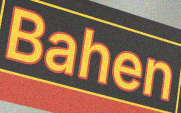
Bahen